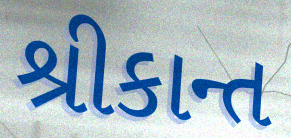
શ્રીકાન્ત